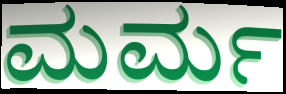
ಮರ್ಮ